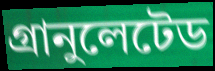
গ্রানুলেটেড